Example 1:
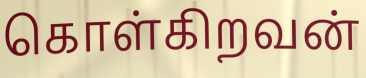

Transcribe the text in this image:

கொள்கிறவன்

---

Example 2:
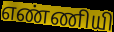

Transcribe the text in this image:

எண்ணியி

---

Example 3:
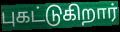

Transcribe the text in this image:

புகட்டுகிறார்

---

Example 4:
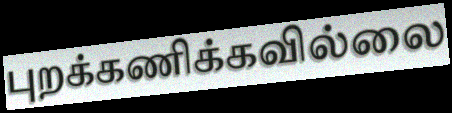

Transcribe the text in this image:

புறக்கணிக்கவில்லை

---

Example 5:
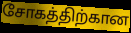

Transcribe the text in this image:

சோகத்திற்கான